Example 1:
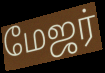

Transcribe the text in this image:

மேஜர்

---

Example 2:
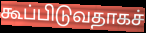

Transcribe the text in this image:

கூப்பிடுவதாகச்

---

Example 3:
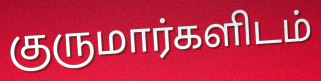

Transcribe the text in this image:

குருமார்களிடம்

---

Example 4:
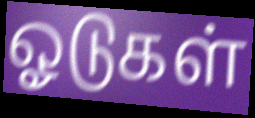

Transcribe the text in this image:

ஓடுகள்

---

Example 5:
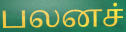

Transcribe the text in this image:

பலனச்